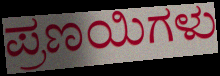
ಪ್ರಣಯಿಗಳು